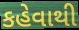
કહેવાથી